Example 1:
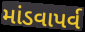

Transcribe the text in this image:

માંડવાપર્વ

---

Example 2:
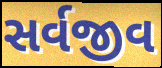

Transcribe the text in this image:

સર્વજીવ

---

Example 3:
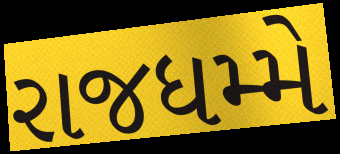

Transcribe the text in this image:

રાજધમ્મે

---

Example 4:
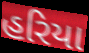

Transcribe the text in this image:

હરિયા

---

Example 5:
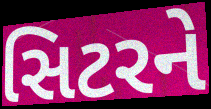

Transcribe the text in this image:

સિટરને